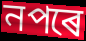
নপৰে